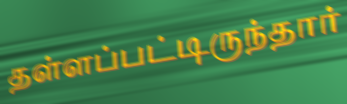
தள்ளப்பட்டிருந்தார்